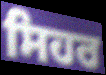
ਸਿਹਰ